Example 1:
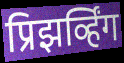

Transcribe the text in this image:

प्रिझर्व्हिंग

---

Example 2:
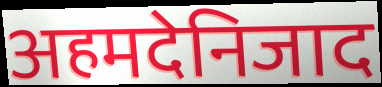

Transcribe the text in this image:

अहमदेनिजाद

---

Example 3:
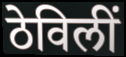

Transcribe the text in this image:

ठेविलीं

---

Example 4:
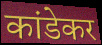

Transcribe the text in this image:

कांडेकर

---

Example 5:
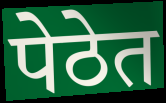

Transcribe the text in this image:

पेठेत